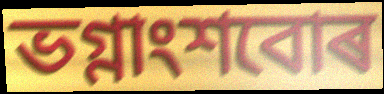
ভগ্নাংশবোৰ